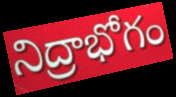
నిద్రాభోగం